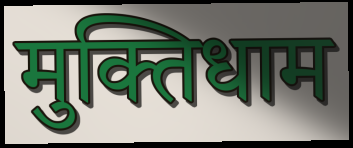
मुक्तिधाम